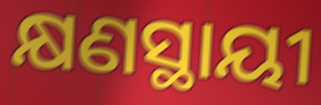
କ୍ଷଣସ୍ଥାୟୀ